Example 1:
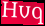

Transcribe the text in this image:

Huq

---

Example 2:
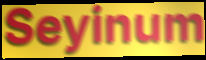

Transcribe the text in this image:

Seyinum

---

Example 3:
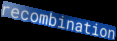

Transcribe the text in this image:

recombination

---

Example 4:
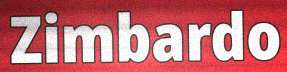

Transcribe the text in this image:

Zimbardo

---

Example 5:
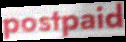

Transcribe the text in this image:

postpaid